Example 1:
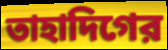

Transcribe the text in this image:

তাহাদিগের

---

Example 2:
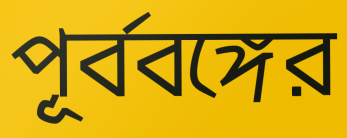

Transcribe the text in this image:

পূর্ববঙ্গের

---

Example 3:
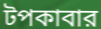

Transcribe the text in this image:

টপকাবার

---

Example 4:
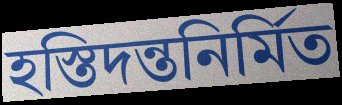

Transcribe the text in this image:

হস্তিদন্তনির্মিত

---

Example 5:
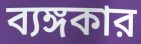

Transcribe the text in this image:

ব্যঙ্গকার